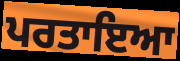
ਪਰਤਾਇਆ